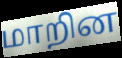
மாறின